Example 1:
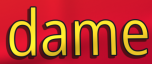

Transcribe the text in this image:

dame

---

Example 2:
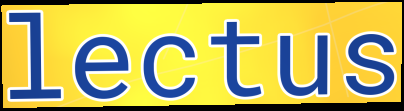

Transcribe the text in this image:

lectus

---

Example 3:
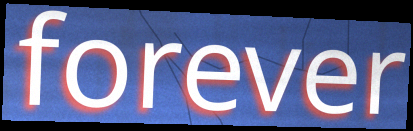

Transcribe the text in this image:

forever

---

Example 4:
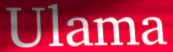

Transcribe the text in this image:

Ulama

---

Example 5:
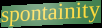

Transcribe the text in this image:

spontainity